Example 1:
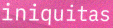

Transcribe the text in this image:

iniquitas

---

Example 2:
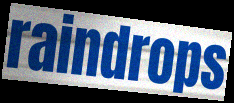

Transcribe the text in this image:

raindrops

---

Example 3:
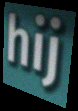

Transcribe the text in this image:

hij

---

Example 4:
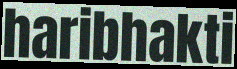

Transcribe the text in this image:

haribhakti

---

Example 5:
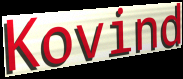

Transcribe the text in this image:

Kovind